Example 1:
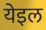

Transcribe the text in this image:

येइल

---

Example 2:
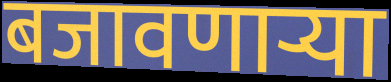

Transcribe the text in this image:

बजावणाऱ्या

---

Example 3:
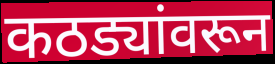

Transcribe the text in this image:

कठड्यांवरून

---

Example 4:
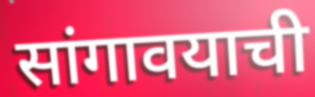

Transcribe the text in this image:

सांगावयाची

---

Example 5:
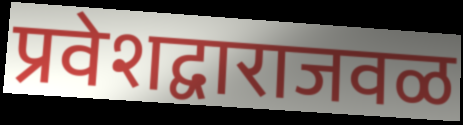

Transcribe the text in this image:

प्रवेशद्वाराजवळ